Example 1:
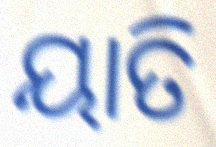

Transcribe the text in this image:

ୟାତି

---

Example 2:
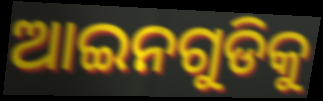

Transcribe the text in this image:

ଆଇନଗୁଡିକୁ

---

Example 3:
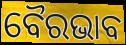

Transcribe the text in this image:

ବୈରଭାବ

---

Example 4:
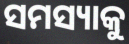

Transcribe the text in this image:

ସମସ୍ୟାକୁ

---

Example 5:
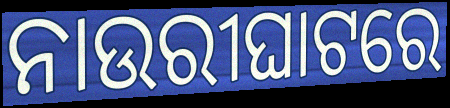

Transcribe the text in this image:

ନାଉରୀଘାଟରେ